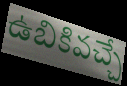
ఉబికివచ్చే